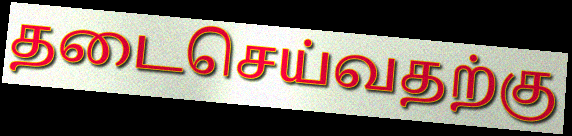
தடைசெய்வதற்கு